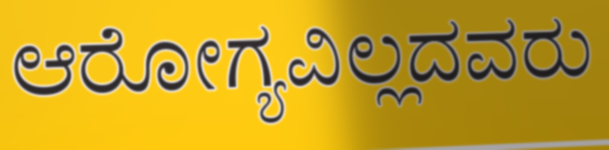
ಆರೋಗ್ಯವಿಲ್ಲದವರು